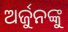
ଅର୍ଜୁନଙ୍କୁ